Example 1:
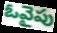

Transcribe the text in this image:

ఓవైపు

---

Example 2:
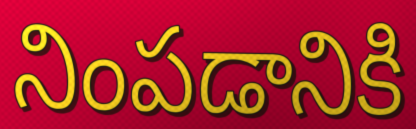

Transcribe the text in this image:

నింపడానికి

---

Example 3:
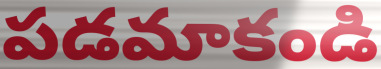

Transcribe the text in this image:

పడమాకండి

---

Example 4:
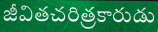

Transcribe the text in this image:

జీవితచరిత్రకారుడు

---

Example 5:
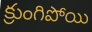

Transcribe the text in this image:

క్రుంగిపోయి